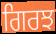
ਗਿਰਝ